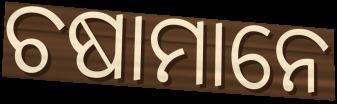
ଚଷାମାନେ